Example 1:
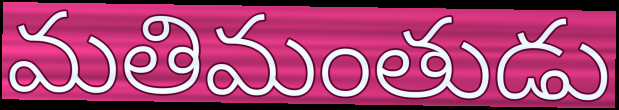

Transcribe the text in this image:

మతిమంతుడు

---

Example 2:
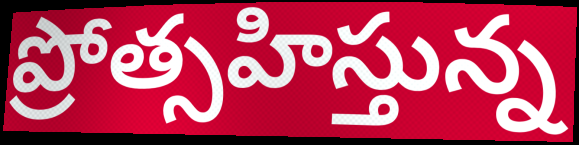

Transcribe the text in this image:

ప్రోత్సహిస్తున్న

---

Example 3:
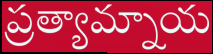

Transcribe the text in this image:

ప్రత్యామ్నాయ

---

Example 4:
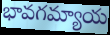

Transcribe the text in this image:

భావగమ్యాయ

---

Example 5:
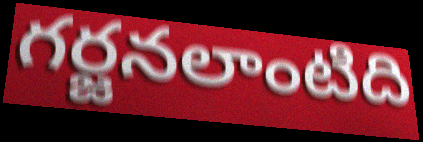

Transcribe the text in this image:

గర్జనలాంటిది